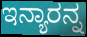
ಇನ್ಯಾರನ್ನ